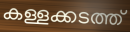
കള്ളക്കടത്ത്